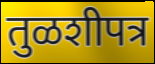
तुळशीपत्र